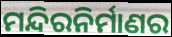
ମନ୍ଦିରନିର୍ମାଣର